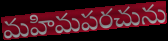
మహిమపరచును